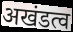
अखंडत्व